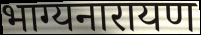
भाग्यनारायण